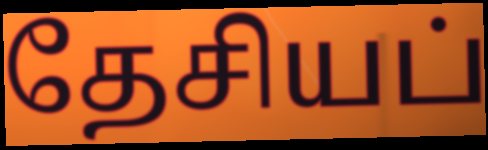
தேசியப்